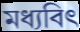
মধ্যবিৎ